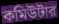
কমিউটার